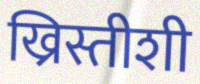
ख्रिस्तीशी